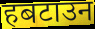
हबटाउन